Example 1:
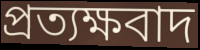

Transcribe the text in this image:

প্রত্যক্ষবাদ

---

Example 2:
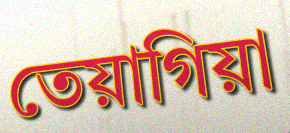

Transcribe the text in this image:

তেয়াগিয়া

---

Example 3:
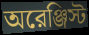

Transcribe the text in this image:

অরেঞ্জিস্ট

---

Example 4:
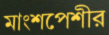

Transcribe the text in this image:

মাংশপেশীর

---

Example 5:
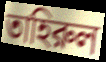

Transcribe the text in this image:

তাহিরুল